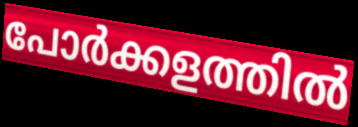
പോർക്കളത്തിൽ